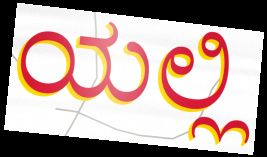
ಯಲ್ಲಿ